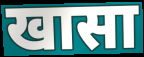
खासा